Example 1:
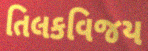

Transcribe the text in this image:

તિલકવિજય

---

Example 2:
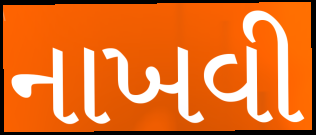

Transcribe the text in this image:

નાખવી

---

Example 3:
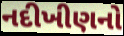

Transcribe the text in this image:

નદીખીણનો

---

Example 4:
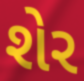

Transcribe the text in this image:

શેર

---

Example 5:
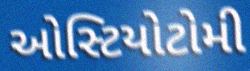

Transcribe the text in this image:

ઓસ્ટિયોટોમી